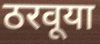
ठरवूया